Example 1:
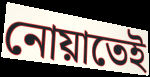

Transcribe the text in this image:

নোয়াতেই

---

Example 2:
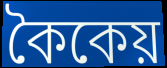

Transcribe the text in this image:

কৈকেয়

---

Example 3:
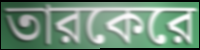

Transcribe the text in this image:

তারকেরে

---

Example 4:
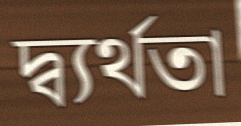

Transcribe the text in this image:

দ্ব্যর্থতা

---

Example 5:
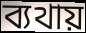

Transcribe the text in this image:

ব্যথায়